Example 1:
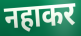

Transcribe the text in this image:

नहाकर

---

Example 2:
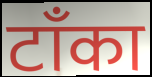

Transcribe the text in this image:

टाँका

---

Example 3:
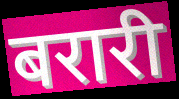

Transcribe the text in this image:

बरारी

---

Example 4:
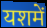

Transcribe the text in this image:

यशमें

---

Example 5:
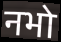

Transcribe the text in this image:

नभो